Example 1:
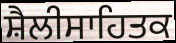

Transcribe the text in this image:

ਸ਼ੈਲੀਸਾਹਿਤਕ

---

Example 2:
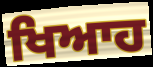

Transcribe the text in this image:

ਖਿਆਹ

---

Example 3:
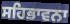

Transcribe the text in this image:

ਸਹਿਭਾਵਨਾ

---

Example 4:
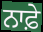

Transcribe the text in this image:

ਨਾਫ਼ੇ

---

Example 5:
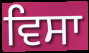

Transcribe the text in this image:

ਵਿਸਾ